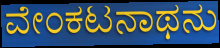
ವೇಂಕಟನಾಥನು